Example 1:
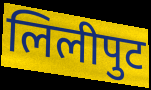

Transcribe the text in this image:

लिलीपुट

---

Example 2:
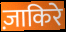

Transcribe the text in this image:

ज़ाकिरे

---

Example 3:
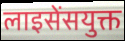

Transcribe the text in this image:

लाइसेंसयुक्त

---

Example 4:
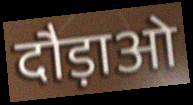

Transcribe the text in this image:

दौड़ाओ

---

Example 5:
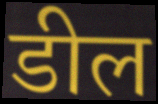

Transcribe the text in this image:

डील